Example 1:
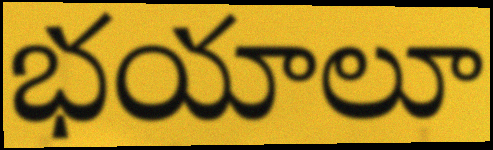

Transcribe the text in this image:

భయాలూ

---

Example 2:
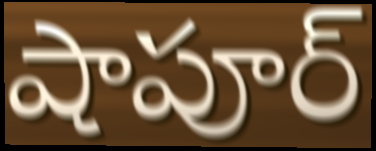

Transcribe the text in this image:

షాపూర్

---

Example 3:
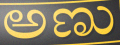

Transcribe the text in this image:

అణు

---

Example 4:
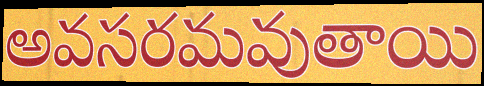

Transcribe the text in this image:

అవసరమవుతాయి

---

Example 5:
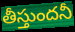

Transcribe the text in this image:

తీస్తుందనీ